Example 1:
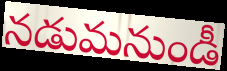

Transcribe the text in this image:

నడుమనుండీ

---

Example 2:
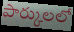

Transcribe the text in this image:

పార్కులలో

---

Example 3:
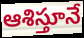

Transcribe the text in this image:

ఆశిస్తూనే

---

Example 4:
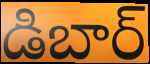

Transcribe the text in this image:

డిబార్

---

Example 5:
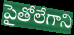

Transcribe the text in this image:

పైతోలేగాని